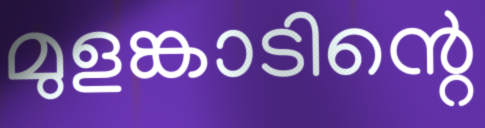
മുളങ്കാടിന്റെ